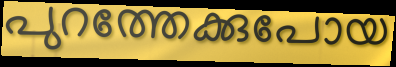
പുറത്തേക്കുപോയ